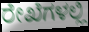
ರೇಖೆಗಳಲ್ಲಿ